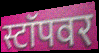
स्टॉपवर